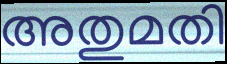
അതുമതി